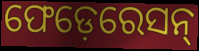
ଫେଡ଼େରେସନ୍